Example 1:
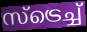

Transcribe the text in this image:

സ്ട്രെച്ച്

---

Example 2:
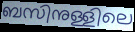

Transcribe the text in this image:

ബസിനുള്ളിലെ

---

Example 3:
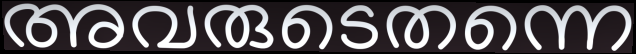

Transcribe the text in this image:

അവരുടെതന്നെ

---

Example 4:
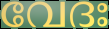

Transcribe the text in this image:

വേദഃ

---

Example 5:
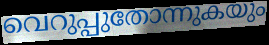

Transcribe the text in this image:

വെറുപ്പുതോന്നുകയും